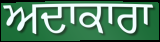
ਅਦਾਕਾਰਾ